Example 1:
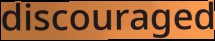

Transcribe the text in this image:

discouraged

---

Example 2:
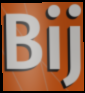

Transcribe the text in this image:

Bij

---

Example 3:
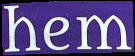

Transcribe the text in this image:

hem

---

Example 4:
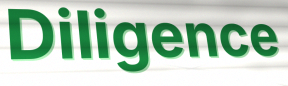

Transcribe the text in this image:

Diligence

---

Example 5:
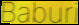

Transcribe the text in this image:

Baburi